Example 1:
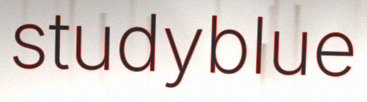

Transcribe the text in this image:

studyblue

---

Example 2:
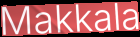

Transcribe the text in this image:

Makkala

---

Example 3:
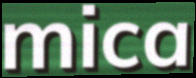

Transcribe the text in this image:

mica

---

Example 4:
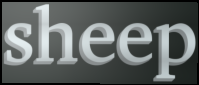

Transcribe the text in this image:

sheep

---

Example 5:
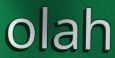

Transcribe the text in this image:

olah